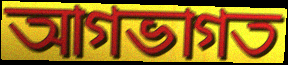
আগভাগত